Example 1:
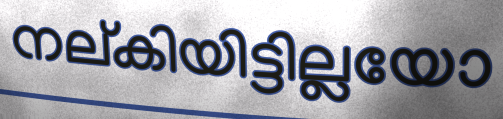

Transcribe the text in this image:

നല്കിയിട്ടില്ലയോ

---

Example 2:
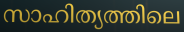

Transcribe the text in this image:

സാഹിത്യത്തിലെ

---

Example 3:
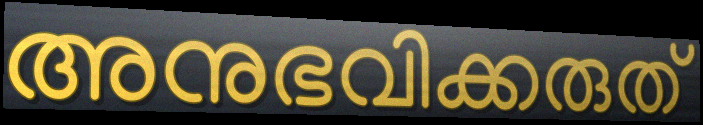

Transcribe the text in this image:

അനുഭവിക്കരുത്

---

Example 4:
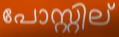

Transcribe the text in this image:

പോസ്റ്റില്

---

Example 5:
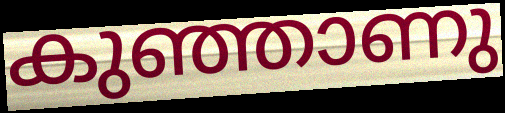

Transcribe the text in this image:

കുഞ്ഞാണു